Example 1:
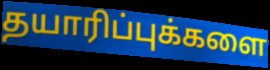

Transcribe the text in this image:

தயாரிப்புக்களை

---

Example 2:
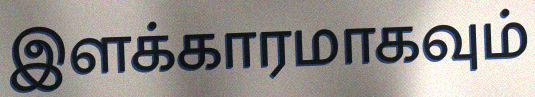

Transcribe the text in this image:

இளக்காரமாகவும்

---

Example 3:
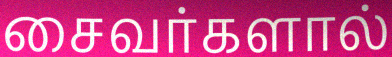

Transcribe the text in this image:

சைவர்களால்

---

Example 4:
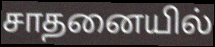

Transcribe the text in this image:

சாதனையில்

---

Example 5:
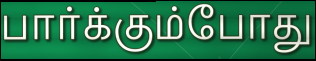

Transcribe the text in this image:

பார்க்கும்போது